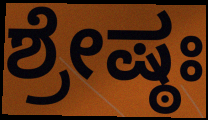
ಶ್ರೇಷ್ಠಃ